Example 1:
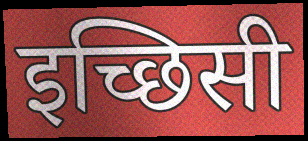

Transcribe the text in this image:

इच्छिसी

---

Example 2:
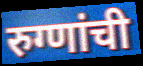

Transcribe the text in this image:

रुग्णांची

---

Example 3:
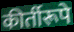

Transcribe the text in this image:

कीर्तीरूपे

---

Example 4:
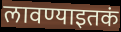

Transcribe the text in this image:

लावण्याइतकं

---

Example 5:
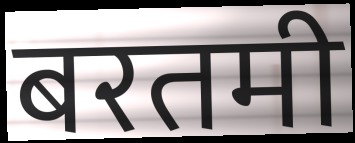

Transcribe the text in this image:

बरतमी